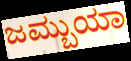
ಜಮ್ಬುಯಾ